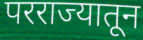
परराज्यातून